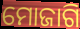
ମୋଜାଗି